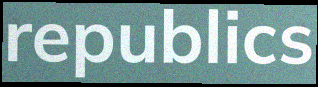
republics